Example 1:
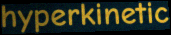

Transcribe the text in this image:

hyperkinetic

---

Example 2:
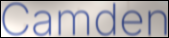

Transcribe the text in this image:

Camden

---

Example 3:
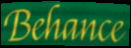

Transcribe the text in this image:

Behance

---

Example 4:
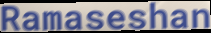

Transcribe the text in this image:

Ramaseshan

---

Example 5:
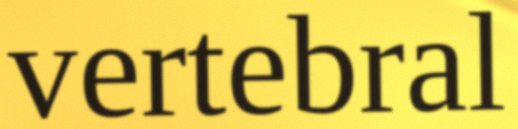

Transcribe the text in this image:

vertebral